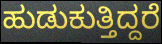
ಹುಡುಕುತ್ತಿದ್ದರೆ